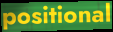
positional